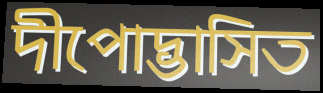
দীপোদ্ভাসিত